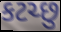
કટચ્છુ